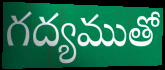
గద్యముతో